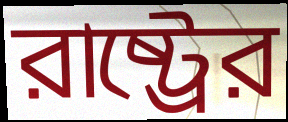
রাষ্ট্রের